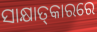
ସାକ୍ଷାତ୍‌କାରରେ